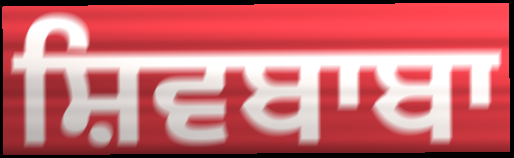
ਸ਼ਿਵਬਾਬਾ